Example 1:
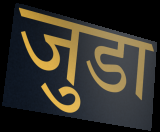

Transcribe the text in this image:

जुडा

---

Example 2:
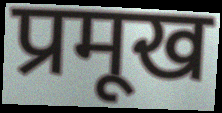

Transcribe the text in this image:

प्रमूख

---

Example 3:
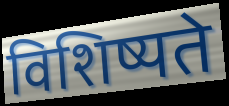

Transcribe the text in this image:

विशिष्यते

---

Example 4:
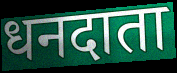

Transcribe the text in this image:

धनदाता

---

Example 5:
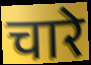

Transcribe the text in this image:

चारे